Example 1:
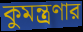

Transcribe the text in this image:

কুমন্ত্রণার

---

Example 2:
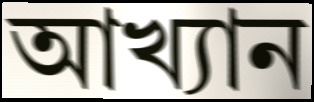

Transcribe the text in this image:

আখ্যান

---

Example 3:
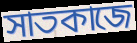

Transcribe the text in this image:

সাতকাজে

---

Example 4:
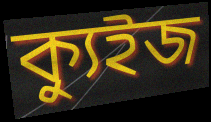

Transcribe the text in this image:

ক্যুইজ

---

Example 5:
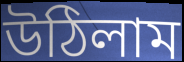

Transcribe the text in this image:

উঠিলাম